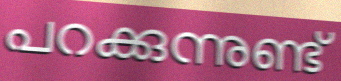
പറക്കുന്നുണ്ട്